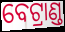
ବେଟ୍ରାଣ୍ଡ